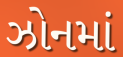
ઝોનમાં